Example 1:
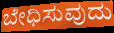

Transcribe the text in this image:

ಬೇಧಿಸುವುದು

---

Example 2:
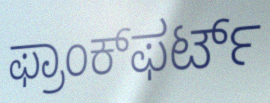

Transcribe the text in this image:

ಫ್ರಾಂಕ್‌ಫರ್ಟ್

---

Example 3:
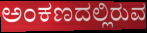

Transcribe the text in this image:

ಅಂಕಣದಲ್ಲಿರುವ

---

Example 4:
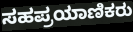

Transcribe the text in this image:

ಸಹಪ್ರಯಾಣಿಕರು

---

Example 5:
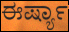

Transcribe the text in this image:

ಈರ್ಷ್ಯಾ